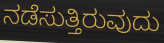
ನಡೆಸುತ್ತಿರುವುದು